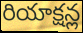
రియాక్షన్ల